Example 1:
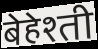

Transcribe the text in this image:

बेहेश्ती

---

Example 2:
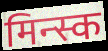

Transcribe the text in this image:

मिन्स्क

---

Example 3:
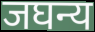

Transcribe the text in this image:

जघन्‍य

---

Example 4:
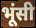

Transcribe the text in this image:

भूंसी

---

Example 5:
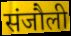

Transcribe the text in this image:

संजौली